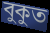
বুকুত